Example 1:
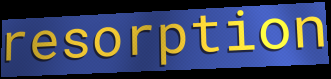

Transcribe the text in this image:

resorption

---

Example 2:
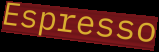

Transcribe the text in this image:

Espresso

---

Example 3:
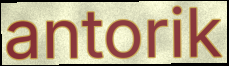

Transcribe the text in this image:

antorik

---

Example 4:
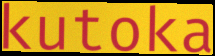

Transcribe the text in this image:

kutoka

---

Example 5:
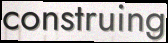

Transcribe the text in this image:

construing